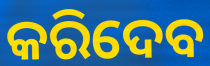
କରିଦେବ